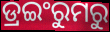
ଡ୍ରଇଂରୁମରୁ